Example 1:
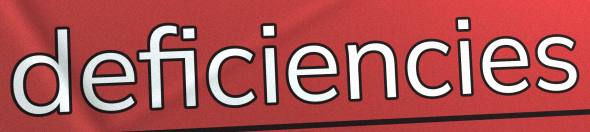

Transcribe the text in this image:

deficiencies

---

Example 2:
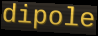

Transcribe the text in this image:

dipole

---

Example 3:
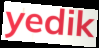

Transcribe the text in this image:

yedik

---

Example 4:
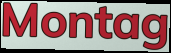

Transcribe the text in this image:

Montag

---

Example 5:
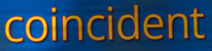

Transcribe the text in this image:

coincident